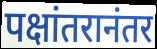
पक्षांतरानंतर